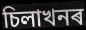
চিলাখনৰ